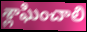
శ్లాఘించాలి